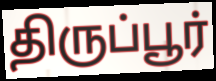
திருப்பூர்